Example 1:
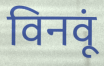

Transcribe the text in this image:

विनवूं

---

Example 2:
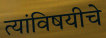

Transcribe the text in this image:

त्यांविषयीचे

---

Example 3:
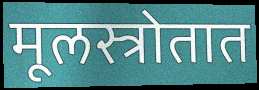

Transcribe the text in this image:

मूलस्त्रोतात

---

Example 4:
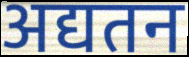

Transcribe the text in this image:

अद्यतन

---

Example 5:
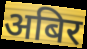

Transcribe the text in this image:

अबिर